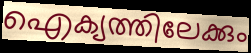
ഐക്യത്തിലേക്കും